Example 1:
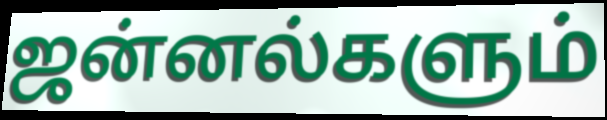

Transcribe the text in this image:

ஜன்னல்களும்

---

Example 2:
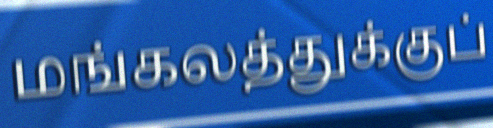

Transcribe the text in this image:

மங்கலத்துக்குப்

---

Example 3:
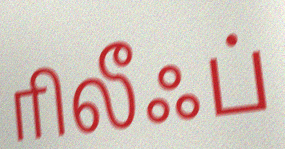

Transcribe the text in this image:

ரிலீஃப்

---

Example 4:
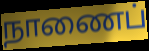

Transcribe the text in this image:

நாணைப்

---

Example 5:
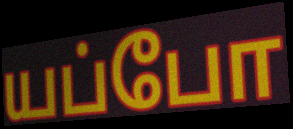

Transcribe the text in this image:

யப்போ